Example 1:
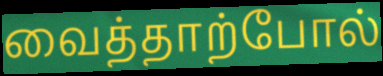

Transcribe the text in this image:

வைத்தாற்போல்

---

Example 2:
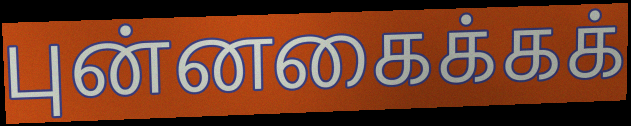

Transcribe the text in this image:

புன்னகைக்கக்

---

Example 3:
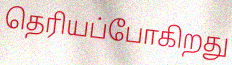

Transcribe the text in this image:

தெரியப்போகிறது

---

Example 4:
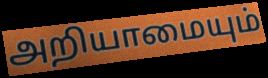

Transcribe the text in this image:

அறியாமையும்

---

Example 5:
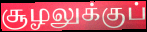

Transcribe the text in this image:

சூழலுக்குப்